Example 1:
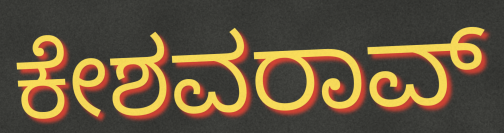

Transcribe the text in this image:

ಕೇಶವರಾವ್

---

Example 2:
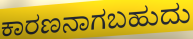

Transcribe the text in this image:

ಕಾರಣನಾಗಬಹುದು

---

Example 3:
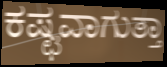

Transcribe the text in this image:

ಕಷ್ಟವಾಗುತ್ತಾ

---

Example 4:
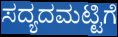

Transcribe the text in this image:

ಸದ್ಯದಮಟ್ಟಿಗೆ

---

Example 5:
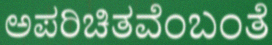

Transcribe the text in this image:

ಅಪರಿಚಿತವೆಂಬಂತೆ